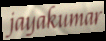
jayakumar